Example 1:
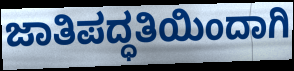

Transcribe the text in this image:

ಜಾತಿಪದ್ಧತಿಯಿಂದಾಗಿ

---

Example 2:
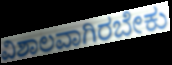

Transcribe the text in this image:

ವಿಶಾಲವಾಗಿರಬೇಕು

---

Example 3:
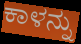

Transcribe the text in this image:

ಕಾಳನ್ನು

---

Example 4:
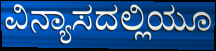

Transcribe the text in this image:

ವಿನ್ಯಾಸದಲ್ಲಿಯೂ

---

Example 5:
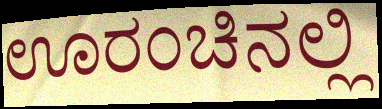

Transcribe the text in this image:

ಊರಂಚಿನಲ್ಲಿ